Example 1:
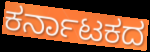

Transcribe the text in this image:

ಕರ್ನಾಟಕದ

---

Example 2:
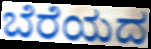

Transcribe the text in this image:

ಬೆರೆಯದ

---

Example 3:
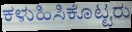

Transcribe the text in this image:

ಕಳುಹಿಸಿಕೊಟ್ಟರು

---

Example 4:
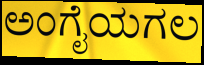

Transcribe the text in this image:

ಅಂಗೈಯಗಲ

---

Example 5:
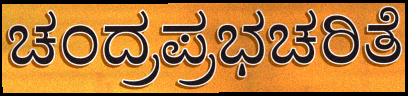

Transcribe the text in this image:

ಚಂದ್ರಪ್ರಭಚರಿತೆ